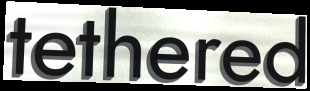
tethered